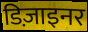
डिज़ाइनर